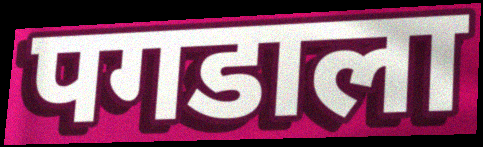
पगडाला